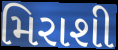
મિરાશી